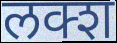
लक्श